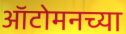
ऑटोमनच्या